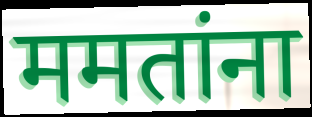
ममतांना